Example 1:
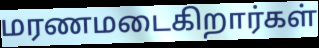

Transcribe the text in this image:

மரணமடைகிறார்கள்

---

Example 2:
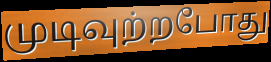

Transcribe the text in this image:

முடிவுற்றபோது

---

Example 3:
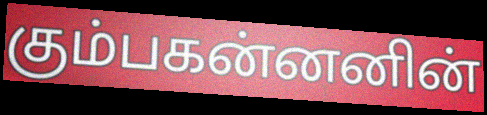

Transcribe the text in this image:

கும்பகன்னனின்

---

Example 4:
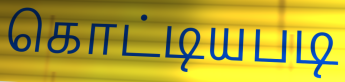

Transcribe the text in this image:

கொட்டியபடி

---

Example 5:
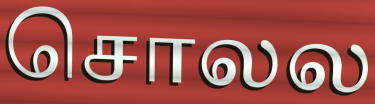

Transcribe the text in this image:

சொலல